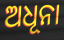
ଅଧୂନା